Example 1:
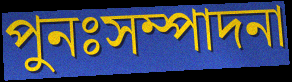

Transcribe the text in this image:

পুনঃসম্পাদনা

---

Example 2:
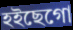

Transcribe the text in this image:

হইছেগো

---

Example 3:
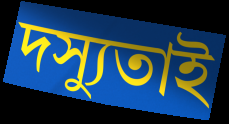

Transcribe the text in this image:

দস্যুতাই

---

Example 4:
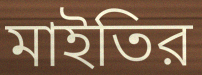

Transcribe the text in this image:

মাইতির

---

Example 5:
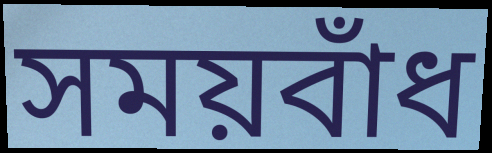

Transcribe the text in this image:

সময়বাঁধ